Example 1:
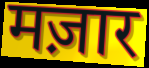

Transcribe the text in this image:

मज़ार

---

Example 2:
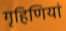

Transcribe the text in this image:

गृहिणियां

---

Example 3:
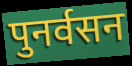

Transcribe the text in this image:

पुनर्वसन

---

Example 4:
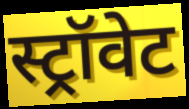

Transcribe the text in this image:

स्ट्रॉवेट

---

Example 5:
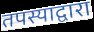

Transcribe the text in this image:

तपस्याद्वारा